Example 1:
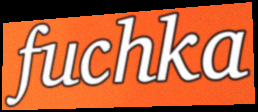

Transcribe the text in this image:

fuchka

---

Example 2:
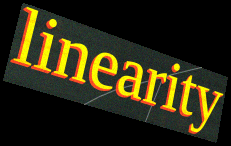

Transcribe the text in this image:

linearity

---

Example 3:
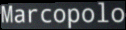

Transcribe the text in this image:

Marcopolo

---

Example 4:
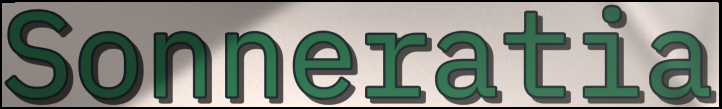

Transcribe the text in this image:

Sonneratia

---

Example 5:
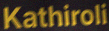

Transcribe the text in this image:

Kathiroli